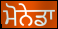
ਮੋਨੇਡਾ